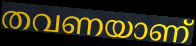
തവണയാണ്